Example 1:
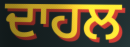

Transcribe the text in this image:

ਦਾਹਲ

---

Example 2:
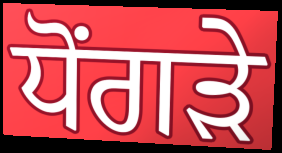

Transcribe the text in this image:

ਧੋਂਗੜੇ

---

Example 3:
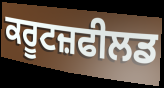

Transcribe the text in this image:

ਕਰੂਟਜ਼ਫੀਲਡ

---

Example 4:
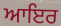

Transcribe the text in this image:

ਆਇਰ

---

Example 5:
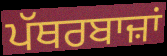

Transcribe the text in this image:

ਪੱਥਰਬਾਜ਼ਾਂ